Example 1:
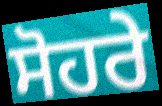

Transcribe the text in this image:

ਸੋਹਰੇ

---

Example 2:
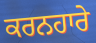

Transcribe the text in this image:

ਕਰਨਹਾਰੇ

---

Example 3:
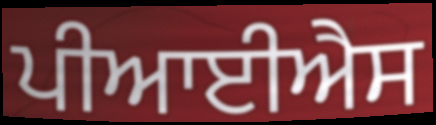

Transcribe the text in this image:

ਪੀਆਈਐਸ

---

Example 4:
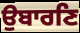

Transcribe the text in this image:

ਉਬਾਰਣਿ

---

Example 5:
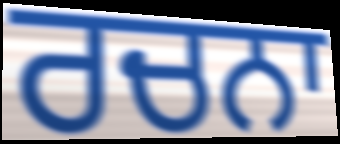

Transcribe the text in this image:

ਰਚਨਾ